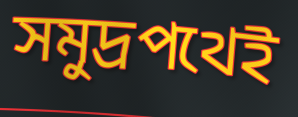
সমুদ্রপথেই